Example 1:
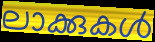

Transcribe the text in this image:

ലാക്കുകൾ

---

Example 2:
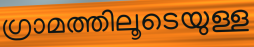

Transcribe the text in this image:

ഗ്രാമത്തിലൂടെയുള്ള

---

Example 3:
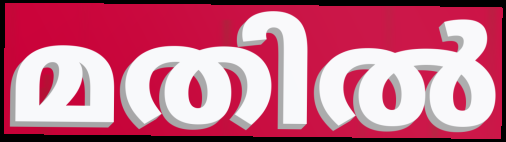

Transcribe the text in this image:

മതിൽ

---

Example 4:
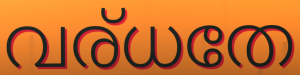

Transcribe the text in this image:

വര്ധതേ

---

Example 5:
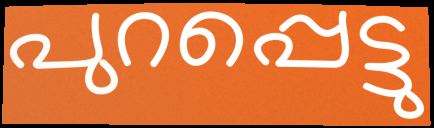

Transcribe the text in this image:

പുറപ്പെട്ടു